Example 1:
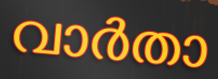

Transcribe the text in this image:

വാർതാ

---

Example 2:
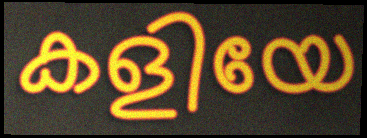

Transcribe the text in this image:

കളിയേ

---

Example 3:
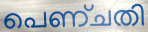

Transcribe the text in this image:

പെണ്ചതി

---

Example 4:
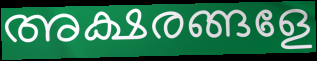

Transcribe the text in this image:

അക്ഷരങ്ങളേ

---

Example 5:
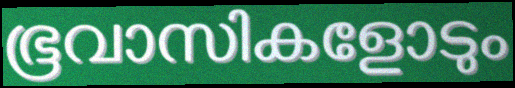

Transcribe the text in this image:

ഭൂവാസികളോടും